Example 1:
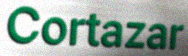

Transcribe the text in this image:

Cortazar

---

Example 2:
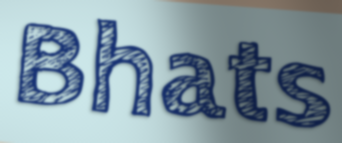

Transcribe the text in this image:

Bhats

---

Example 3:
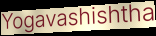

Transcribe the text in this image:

Yogavashishtha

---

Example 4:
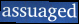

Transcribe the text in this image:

assuaged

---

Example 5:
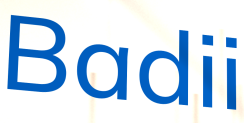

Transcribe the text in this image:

Badii